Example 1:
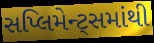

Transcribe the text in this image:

સપ્લિમેન્ટ્સમાંથી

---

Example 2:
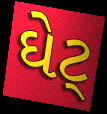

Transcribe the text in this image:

ઘેટ્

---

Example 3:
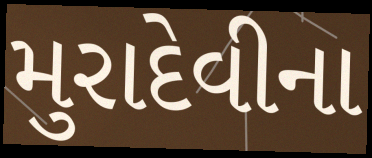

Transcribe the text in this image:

મુરાદેવીના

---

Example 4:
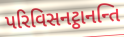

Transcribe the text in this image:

પરિવિસનટ્ઠાનન્તિ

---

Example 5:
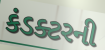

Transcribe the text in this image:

કંડક્ટરની